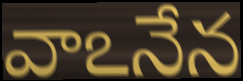
వాఽనేన